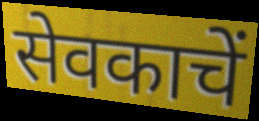
सेवकाचें